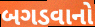
બગડવાનો